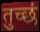
तुच्छं